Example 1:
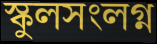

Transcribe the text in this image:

স্কুলসংলগ্ন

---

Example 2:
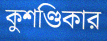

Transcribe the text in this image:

কুশণ্ডিকার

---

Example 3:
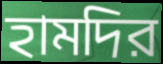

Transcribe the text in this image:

হামদির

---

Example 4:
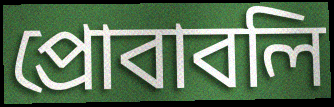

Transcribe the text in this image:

প্রোবাবলি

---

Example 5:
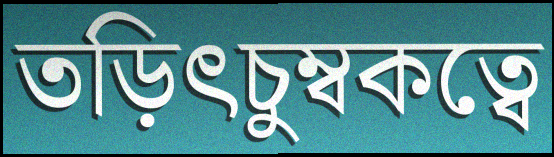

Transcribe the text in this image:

তড়িৎচুম্বকত্বে